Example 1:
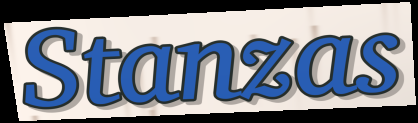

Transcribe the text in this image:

Stanzas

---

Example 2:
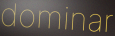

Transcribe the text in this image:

dominar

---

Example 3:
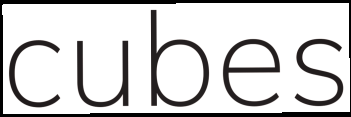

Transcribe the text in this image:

cubes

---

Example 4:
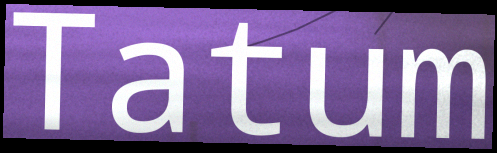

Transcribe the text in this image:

Tatum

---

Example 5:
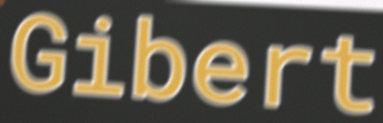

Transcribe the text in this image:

Gibert